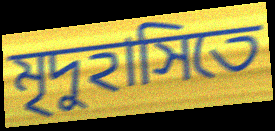
মৃদুহাসিতে